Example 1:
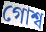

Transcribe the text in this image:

গোশ্ব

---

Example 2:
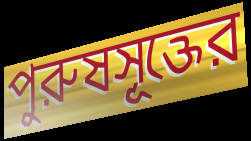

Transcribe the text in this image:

পুরুষসূক্তের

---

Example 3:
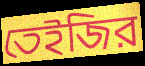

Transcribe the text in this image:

তেইজির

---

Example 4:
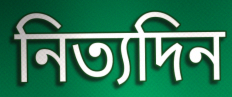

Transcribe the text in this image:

নিত্যদিন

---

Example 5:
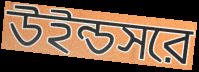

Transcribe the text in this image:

উইন্ডসরে